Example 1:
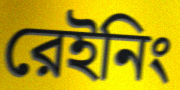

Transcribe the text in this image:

রেইনিং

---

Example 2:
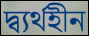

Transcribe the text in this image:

দ্ব্যর্থহীন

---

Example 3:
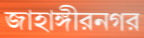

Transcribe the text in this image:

জাহাঙ্গীরনগর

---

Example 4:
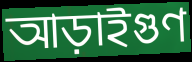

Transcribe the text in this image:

আড়াইগুণ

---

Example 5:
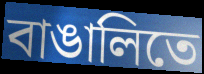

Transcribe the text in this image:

বাঙালিতে